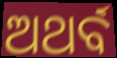
ଅଥର୍ବ